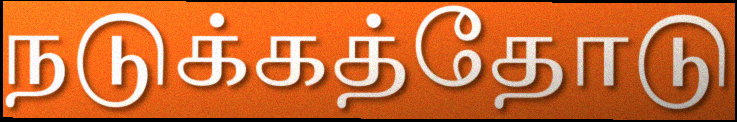
நடுக்கத்தோடு